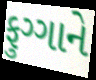
ફુગ્ગાને